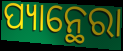
ପ୍ୟାନ୍ଥେରା